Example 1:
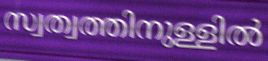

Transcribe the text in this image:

സ്വത്വത്തിനുള്ളിൽ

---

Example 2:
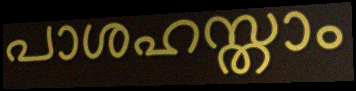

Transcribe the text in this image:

പാശഹസ്താം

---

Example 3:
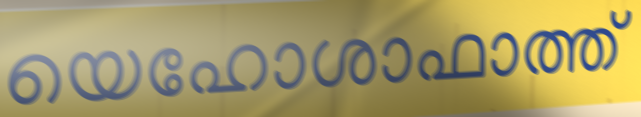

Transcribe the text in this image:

യെഹോശാഫാത്ത്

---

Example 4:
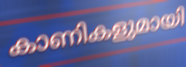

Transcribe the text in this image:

കാണികളുമായി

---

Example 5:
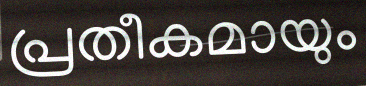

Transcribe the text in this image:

പ്രതീകമായും